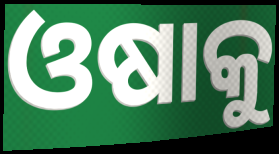
ଓଷାକୁ